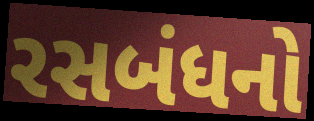
રસબંધનો